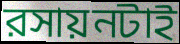
রসায়নটাই